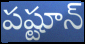
పష్టూన్